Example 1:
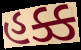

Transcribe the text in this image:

હક્ક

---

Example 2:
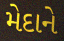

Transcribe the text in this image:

મેદાને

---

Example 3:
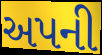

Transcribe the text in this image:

અપની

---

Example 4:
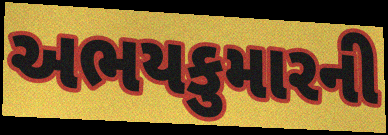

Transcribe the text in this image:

અભયકુમારની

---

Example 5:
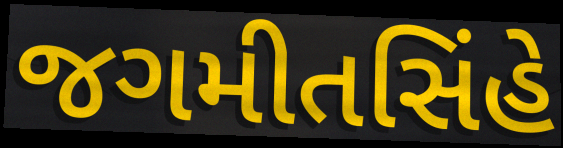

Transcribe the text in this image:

જગમીતસિંહે